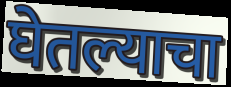
घेतल्याचा